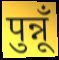
पुन्नूँ